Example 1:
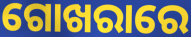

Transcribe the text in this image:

ଗୋଖରାରେ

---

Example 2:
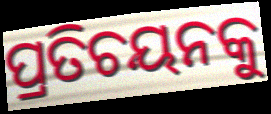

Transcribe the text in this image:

ପ୍ରତିଚୟନକୁ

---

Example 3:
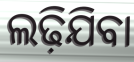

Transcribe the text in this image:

ଲଢ଼ିଯିବା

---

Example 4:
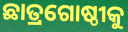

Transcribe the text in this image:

ଛାତ୍ରଗୋଷ୍ଠୀକୁ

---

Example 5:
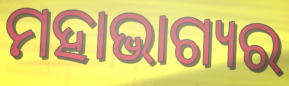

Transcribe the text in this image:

ମହାଭାଗ୍ୟର